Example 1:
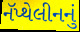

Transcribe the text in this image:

નૅપ્થેલીનનું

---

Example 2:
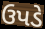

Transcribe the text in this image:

ઉપડે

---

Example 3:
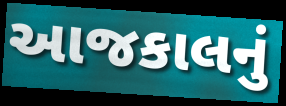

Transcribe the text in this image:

આજકાલનું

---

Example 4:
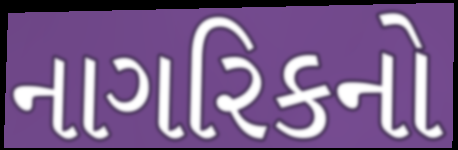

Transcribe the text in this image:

નાગરિકનો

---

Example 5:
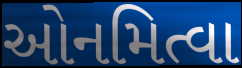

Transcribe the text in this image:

ઓનમિત્વા